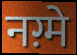
नग़्मे